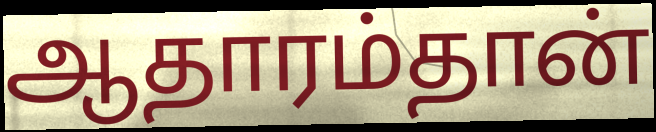
ஆதாரம்தான்